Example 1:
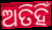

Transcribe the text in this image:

ଅତିହିଁ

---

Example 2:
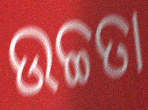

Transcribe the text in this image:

ଉଚ୍ଚତା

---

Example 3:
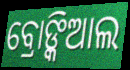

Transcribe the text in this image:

ବ୍ରୋଙ୍କିଆଲ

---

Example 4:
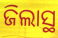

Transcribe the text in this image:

ଜିଲାସ୍ଥ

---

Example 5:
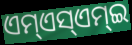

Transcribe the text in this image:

ଏମ୍ଏସ୍ଏମ୍ଇ